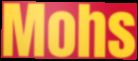
Mohs